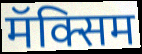
मॅक्सिम